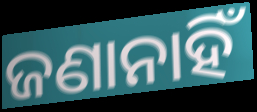
ଜଣାନାହିଁ